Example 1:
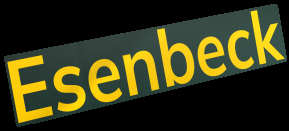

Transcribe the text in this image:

Esenbeck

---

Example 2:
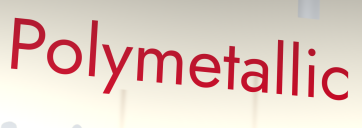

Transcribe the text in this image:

Polymetallic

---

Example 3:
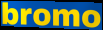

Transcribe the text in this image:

bromo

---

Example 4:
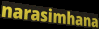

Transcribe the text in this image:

narasimhana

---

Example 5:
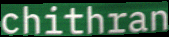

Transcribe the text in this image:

chithran